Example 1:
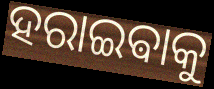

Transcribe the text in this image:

ହରାଇଵାକୁ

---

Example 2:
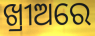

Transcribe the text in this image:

ଖ୍ରୀଅରେ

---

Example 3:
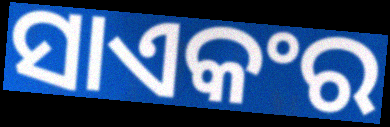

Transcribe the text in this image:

ସାଏକଂର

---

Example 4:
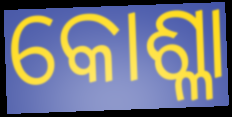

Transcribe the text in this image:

କୋଶ୍ଳା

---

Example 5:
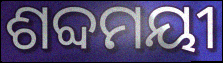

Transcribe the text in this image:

ଶବ୍ଦମୟୀ